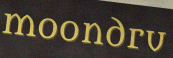
moondru